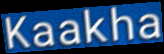
Kaakha